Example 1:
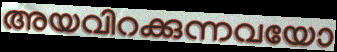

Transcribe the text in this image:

അയവിറക്കുന്നവയോ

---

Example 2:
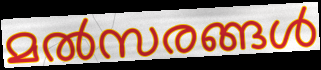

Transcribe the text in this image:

മൽസരങ്ങൾ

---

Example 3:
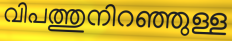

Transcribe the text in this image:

വിപത്തുനിറഞ്ഞുള്ള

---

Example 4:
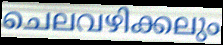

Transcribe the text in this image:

ചെലവഴിക്കലും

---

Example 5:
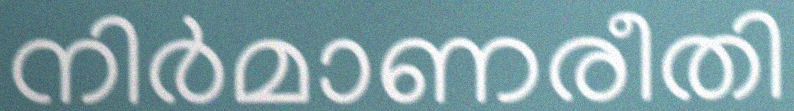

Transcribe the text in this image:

നിർമാണരീതി